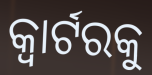
କ୍ୱାର୍ଟରକୁ